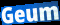
Geum